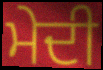
ਮੇਦੀ